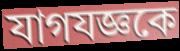
যাগযজ্ঞকে